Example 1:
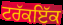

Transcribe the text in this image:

ਟਰੱਕਇੱਕ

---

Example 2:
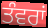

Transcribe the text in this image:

ਤੰਵਰਾਂ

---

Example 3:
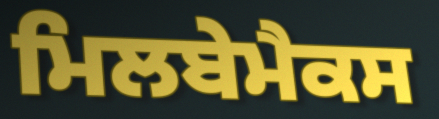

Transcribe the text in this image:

ਮਿਲਬੇਮੈਕਸ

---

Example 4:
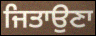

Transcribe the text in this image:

ਜਿਤਾਉਣਾ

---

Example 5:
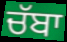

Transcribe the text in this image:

ਚੱਬਾ